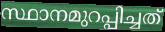
സ്ഥാനമുറപ്പിച്ചത്